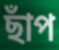
ছাঁপ